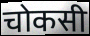
चोकसी